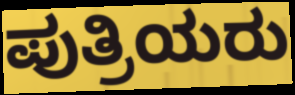
ಪುತ್ರಿಯರು